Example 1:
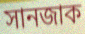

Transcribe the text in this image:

সানজাক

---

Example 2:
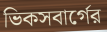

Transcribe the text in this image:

ভিকসবার্গের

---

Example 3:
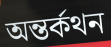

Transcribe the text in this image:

অন্তর্কথন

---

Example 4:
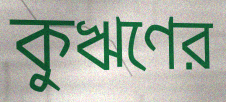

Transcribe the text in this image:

কুঋণের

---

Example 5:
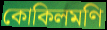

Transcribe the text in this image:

কোকিলমণি